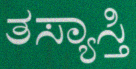
ತಸ್ಯಾಸ್ತಿ